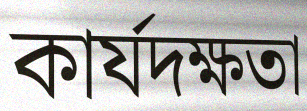
কাৰ্যদক্ষতা